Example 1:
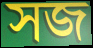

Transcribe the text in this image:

সজ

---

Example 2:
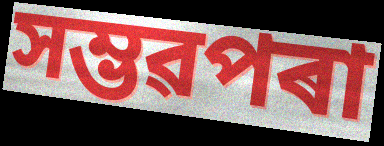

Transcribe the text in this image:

সম্ভৱপৰা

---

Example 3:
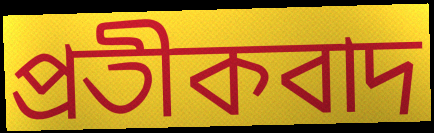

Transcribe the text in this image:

প্ৰতীকবাদ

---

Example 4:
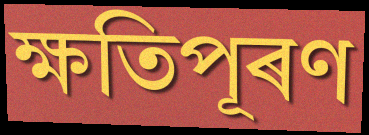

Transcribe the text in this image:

ক্ষতিপূৰণ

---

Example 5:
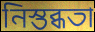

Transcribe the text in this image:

নিস্তব্ধতা